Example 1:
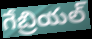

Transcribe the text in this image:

గేబ్రియల్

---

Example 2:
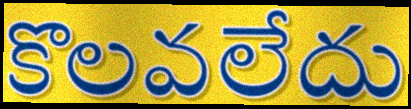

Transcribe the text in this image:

కొలవలేదు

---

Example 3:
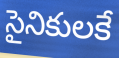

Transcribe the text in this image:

సైనికులకే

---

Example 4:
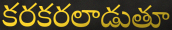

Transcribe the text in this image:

కరకరలాడుతూ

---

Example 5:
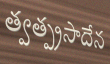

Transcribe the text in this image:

త్వత్ప్రసాదేన